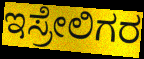
ಇಸ್ರೇಲಿಗರ